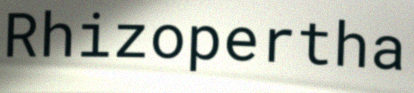
Rhizopertha